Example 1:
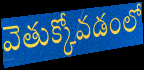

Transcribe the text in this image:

వెతుక్కోవడంలో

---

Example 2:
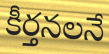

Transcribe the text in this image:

కీర్తనలనే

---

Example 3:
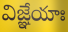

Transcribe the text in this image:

విజ్ఞేయాః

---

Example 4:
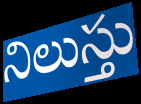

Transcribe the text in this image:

నిలుస్తు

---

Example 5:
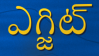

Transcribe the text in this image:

ఎగ్జిట్